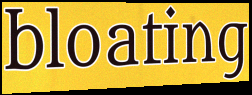
bloating